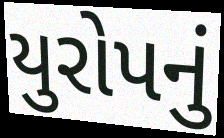
યુરોપનું